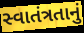
સ્વાતંત્રતાનું